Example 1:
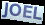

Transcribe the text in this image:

JOEL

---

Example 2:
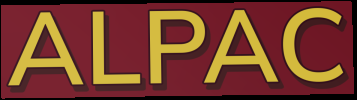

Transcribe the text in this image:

ALPAC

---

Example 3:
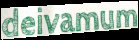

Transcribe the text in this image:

deivamum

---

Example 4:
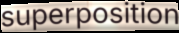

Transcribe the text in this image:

superposition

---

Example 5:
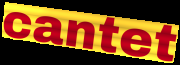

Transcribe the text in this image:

cantet